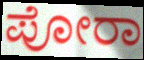
ಪೋರಾ